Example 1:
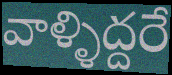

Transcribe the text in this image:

వాళ్ళిద్దరే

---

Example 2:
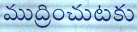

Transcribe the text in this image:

ముద్రించుటకు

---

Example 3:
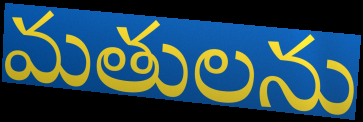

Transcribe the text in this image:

మతులను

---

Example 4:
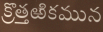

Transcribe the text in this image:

క్రొత్తఱికమున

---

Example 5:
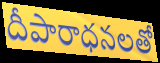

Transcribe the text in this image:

దీపారాధనలతో